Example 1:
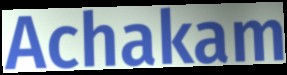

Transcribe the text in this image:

Achakam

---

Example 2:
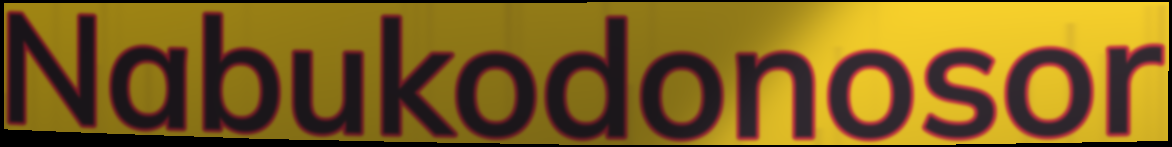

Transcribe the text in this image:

Nabukodonosor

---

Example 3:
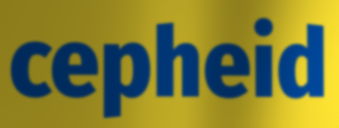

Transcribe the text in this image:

cepheid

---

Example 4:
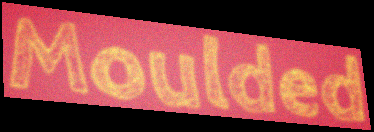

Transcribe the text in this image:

Moulded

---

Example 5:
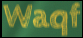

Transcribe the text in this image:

Waqf